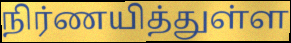
நிர்ணயித்துள்ள